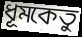
ধূমকেতু